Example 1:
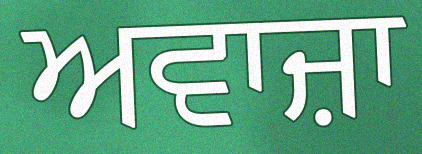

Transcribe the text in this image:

ਅਵਾਜ਼ਾ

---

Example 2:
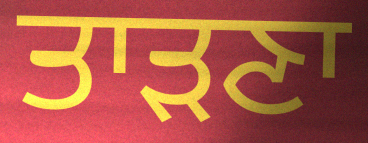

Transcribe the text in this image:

ਤਾੜਣਾ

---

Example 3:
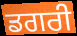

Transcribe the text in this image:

ਡਗਰੀ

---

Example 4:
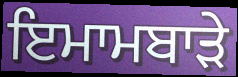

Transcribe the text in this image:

ਇਮਾਮਬਾੜੇ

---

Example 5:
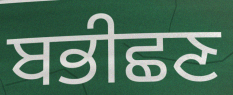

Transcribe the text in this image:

ਬਭੀਛਣ